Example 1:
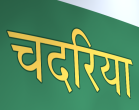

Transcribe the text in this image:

चदरिया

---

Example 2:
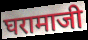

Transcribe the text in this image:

घरामाजी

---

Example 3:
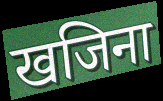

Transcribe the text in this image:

खजिना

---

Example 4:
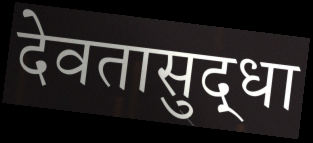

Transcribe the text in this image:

देवतासुद्धा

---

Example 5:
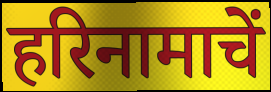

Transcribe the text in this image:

हरिनामाचें